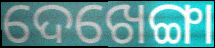
ଦେଖେଙ୍ଗା